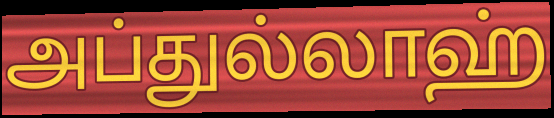
அப்துல்லாஹ்